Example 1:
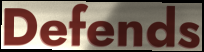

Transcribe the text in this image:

Defends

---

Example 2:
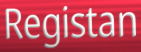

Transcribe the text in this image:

Registan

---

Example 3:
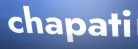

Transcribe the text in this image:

chapati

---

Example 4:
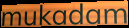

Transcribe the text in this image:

mukadam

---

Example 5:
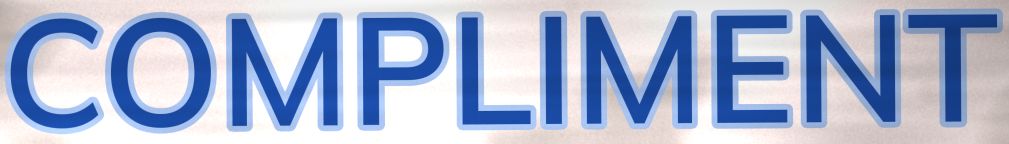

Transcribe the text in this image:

COMPLIMENT